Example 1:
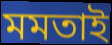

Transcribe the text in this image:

মমতাই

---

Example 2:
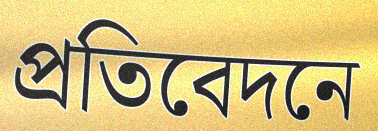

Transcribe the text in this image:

প্ৰতিবেদনে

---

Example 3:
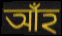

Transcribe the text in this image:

আঁহ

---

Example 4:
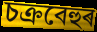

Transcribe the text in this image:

চক্ৰবেহুৰ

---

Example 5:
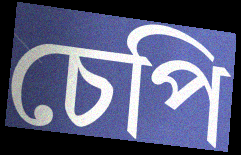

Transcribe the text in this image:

চেপি